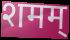
शमम्